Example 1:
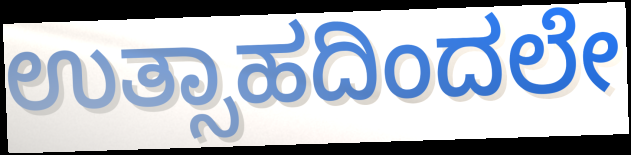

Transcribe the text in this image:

ಉತ್ಸಾಹದಿಂದಲೇ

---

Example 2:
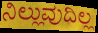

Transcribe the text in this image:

ನಿಲ್ಲುವುದಿಲ್ಲ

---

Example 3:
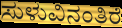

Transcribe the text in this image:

ಸುಳುವಿನಂತಿರೆ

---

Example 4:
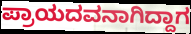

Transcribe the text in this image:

ಪ್ರಾಯದವನಾಗಿದ್ದಾಗ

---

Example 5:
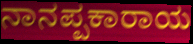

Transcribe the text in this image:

ನಾನಪ್ಪಕಾರಾಯ